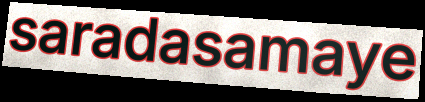
saradasamaye